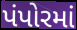
પંપોરમાં